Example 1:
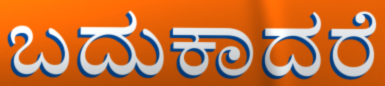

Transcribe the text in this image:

ಬದುಕಾದರೆ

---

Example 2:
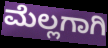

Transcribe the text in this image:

ಮೆಲ್ಲಗಾಗಿ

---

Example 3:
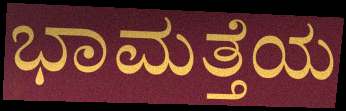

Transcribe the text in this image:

ಭಾಮತ್ತೆಯ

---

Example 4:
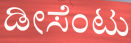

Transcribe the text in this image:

ಡೀಸೆಂಟು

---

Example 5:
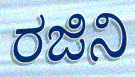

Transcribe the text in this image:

ರಜಿನಿ